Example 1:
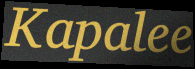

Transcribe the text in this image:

Kapalee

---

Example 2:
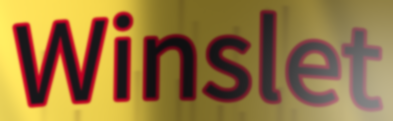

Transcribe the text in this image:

Winslet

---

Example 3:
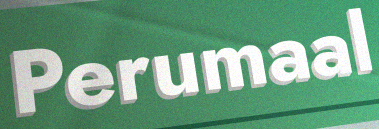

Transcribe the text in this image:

Perumaal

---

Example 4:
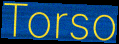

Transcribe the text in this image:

Torso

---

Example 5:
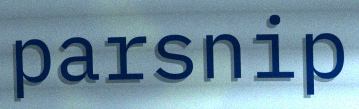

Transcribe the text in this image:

parsnip